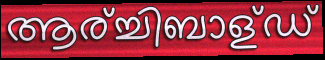
ആര്ച്ചിബാള്ഡ്